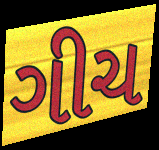
ગીચ